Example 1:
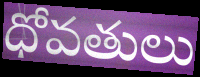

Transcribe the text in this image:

ధోవతులు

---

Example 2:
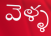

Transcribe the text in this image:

వెళ్ళ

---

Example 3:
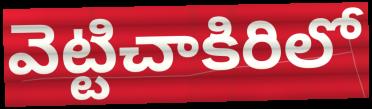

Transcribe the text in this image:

వెట్టిచాకిరిలో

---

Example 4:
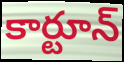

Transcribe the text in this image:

కార్టూన్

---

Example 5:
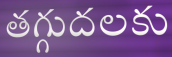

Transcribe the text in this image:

తగ్గుదలకు